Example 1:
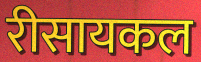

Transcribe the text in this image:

रीसायकल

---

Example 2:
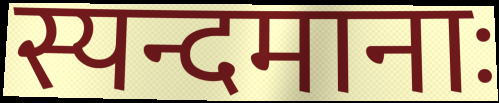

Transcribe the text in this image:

स्यन्दमानाः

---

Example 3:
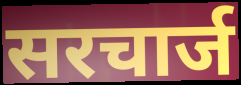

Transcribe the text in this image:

सरचार्ज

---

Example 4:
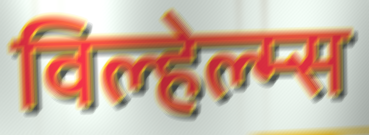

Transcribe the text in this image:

विल्हेल्म्स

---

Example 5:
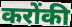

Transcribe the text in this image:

करोंकी